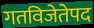
गतविजेतेपद